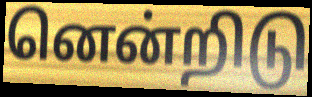
னென்றிடு